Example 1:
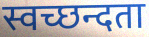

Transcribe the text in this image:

स्वच्छन्दता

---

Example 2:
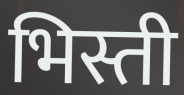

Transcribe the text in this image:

भिस्ती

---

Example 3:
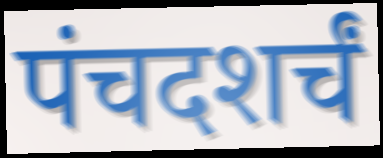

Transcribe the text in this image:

पंचदशर्चं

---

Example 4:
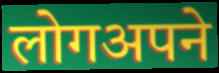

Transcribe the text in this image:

लोगअपने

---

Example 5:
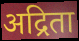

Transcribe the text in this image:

अद्रिता